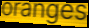
oranges